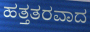
ಹತ್ತತರವಾದ